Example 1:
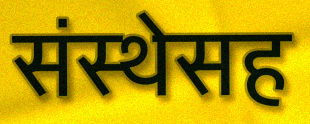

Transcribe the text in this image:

संस्थेसह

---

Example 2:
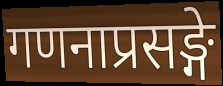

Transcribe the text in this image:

गणनाप्रसङ्गे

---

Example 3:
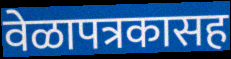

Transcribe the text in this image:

वेळापत्रकासह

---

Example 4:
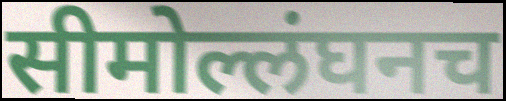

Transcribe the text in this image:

सीमोल्लंघनच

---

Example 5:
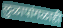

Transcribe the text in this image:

लुळापांगळाही